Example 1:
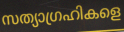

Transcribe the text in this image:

സത്യാഗ്രഹികളെ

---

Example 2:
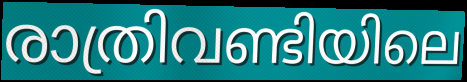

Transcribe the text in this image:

രാത്രിവണ്ടിയിലെ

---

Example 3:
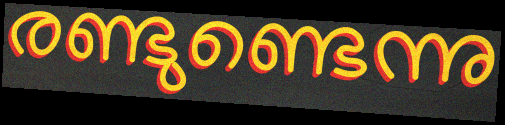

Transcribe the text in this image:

രണ്ടുണ്ടെന്നു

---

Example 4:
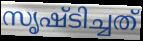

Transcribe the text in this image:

സൃഷ്ടിച്ചത്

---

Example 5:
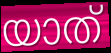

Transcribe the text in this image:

യാത്